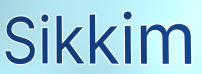
Sikkim